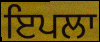
ਇਪਲਾ